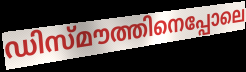
ഡിസ്മൗത്തിനെപ്പോലെ